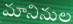
మానినుల